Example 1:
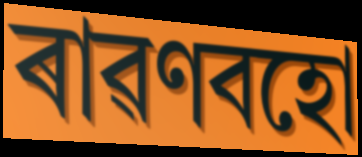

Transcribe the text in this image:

ৰাৱণবহো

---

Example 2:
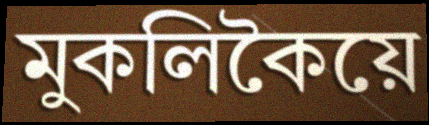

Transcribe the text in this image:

মুকলিকৈয়ে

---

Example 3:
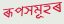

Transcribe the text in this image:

ৰূপসমূহৰ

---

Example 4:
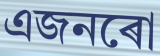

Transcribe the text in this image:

এজনৰো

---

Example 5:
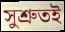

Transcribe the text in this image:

সুশ্ৰুতই